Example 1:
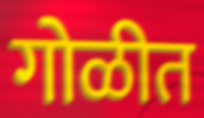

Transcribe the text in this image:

गोळीत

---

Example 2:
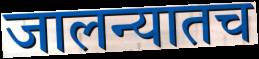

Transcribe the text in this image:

जालन्यातच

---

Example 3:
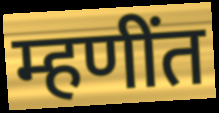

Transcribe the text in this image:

म्हणींत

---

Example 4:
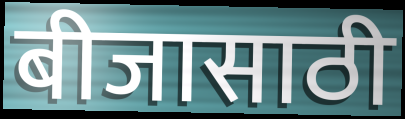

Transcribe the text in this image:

बीजासाठी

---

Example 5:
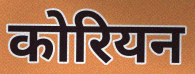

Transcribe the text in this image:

कोरियन